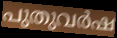
പുതുവർഷ